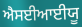
ਐਸਈਆਈਯੂ